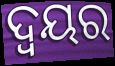
ଦ୍ଵୟର